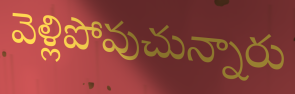
వెళ్లిపోవుచున్నారు